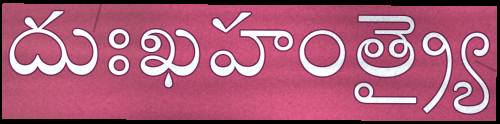
దుఃఖహంత్ర్యై